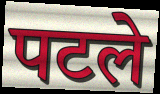
पटले